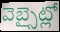
వెబ్సైట్లో